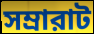
সম্রারাট